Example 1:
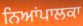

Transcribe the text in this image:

ਨਿਆਂਪਾਲਕਾ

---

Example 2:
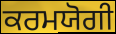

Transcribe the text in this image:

ਕਰਮਯੋਗੀ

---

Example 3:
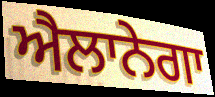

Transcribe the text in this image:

ਐਲਾਨੇਗਾ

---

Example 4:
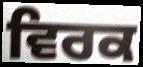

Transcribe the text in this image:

ਵਿਰਕ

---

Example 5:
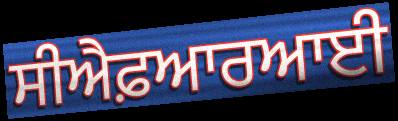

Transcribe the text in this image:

ਸੀਐਫ਼ਆਰਆਈ